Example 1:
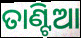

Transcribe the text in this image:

ତାଣ୍ଟିଆ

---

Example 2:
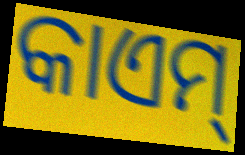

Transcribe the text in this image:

କାଏମ୍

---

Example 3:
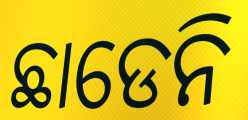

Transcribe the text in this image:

ଛାଡେନି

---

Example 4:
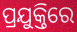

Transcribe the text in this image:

ପ୍ରଯୁକ୍ତିରେ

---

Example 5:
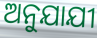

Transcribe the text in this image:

ଅନୁଯାଯୀ